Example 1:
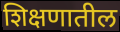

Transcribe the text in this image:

शिक्षणातील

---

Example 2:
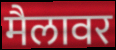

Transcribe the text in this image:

मैलावर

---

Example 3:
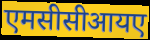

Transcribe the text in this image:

एमसीसीआयए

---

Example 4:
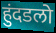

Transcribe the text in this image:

हुंदडलो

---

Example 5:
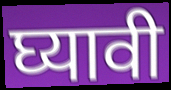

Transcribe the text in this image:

घ्यावी